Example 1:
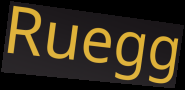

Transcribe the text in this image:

Ruegg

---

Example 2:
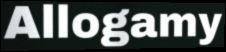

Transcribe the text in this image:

Allogamy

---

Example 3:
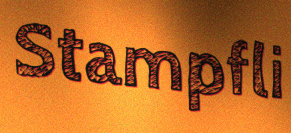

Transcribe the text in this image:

Stampfli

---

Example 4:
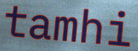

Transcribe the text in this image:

tamhi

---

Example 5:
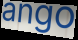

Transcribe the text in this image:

ango